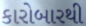
કારોબારથી